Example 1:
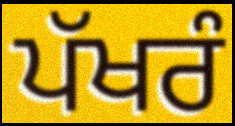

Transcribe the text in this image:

ਪੱਖਰੰ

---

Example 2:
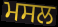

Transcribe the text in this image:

ਮਸਲ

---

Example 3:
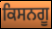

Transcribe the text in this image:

ਕਿਸਨਗੂ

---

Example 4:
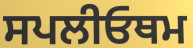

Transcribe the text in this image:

ਸਪਲੀਓਥਮ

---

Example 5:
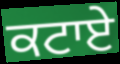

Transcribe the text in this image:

ਕਟਾਏ